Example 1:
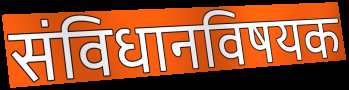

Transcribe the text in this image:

संविधानविषयक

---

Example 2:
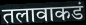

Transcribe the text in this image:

तलावाकडं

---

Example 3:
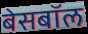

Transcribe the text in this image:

बेसबॉल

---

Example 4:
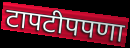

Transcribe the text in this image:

टापटीपपणा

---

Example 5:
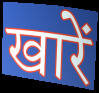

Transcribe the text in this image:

खारें